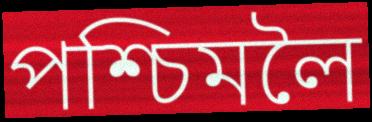
পশ্চিমলৈ